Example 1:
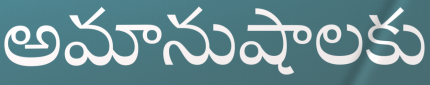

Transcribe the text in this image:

అమానుషాలకు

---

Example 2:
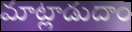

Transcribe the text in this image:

మాట్లాడుదాం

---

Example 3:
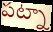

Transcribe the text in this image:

పట్నా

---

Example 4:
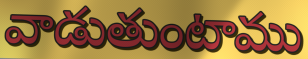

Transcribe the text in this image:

వాడుతుంటాము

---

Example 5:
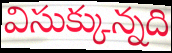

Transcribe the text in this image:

విసుక్కున్నది